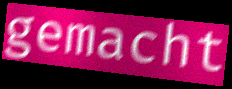
gemacht